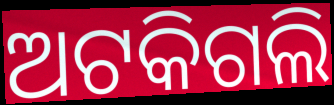
ଅଟକିଗଲି